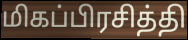
மிகப்பிரசித்தி